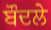
ਬੌਦਲੇ